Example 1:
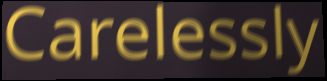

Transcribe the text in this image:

Carelessly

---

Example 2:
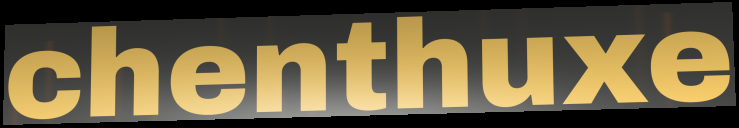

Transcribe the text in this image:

chenthuxe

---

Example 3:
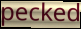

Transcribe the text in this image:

pecked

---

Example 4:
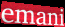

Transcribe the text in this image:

emani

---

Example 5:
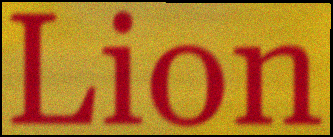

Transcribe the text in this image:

Lion